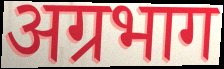
अग्रभाग